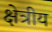
क्षेत्रीय